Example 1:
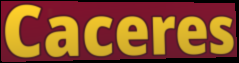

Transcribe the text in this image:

Caceres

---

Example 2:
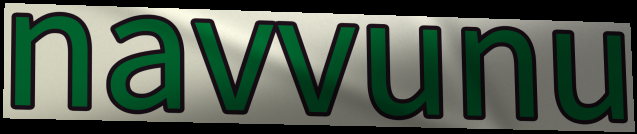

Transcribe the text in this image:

navvunu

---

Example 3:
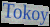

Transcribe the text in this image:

Tokoy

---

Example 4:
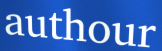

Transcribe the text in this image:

authour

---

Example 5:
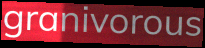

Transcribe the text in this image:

granivorous